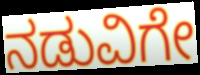
ನಡುವಿಗೇ